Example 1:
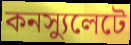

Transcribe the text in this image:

কনস্যুলেটে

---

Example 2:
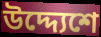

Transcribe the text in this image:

উদ্দ্যেশে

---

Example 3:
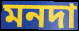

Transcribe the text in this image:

মনদা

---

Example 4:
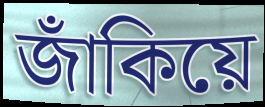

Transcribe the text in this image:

জাঁকিয়ে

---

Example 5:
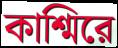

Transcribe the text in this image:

কাশ্মিরে